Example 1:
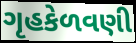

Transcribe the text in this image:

ગૃહકેળવણી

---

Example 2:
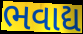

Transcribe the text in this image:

ભવાદ્ય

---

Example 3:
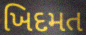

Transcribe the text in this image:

ખિદમત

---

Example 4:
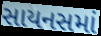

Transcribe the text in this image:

સાયનસમાં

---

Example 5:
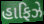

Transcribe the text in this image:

હાફિઝે